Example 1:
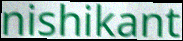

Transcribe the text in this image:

nishikant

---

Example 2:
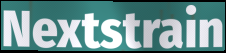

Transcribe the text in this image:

Nextstrain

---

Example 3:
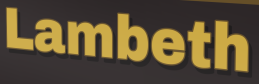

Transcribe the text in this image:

Lambeth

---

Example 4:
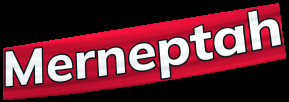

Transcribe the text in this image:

Merneptah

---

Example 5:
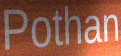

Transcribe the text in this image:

Pothan